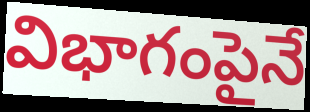
విభాగంపైనే